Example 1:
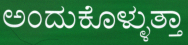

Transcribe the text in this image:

ಅಂದುಕೊಳ್ಳುತ್ತಾ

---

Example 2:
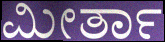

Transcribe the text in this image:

ಮೀರ್ತಾ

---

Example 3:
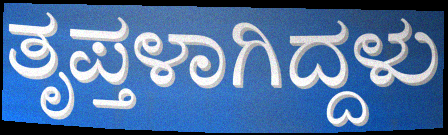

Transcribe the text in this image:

ತೃಪ್ತಳಾಗಿದ್ದಳು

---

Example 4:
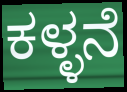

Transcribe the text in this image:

ಕಳ್ಳನೆ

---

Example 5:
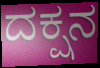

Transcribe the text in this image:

ದಕ್ಷನ